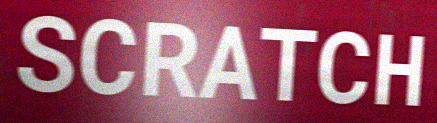
SCRATCH